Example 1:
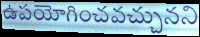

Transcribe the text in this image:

ఉపయోగించవచ్చునని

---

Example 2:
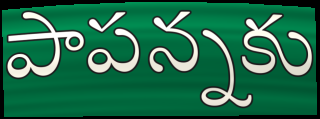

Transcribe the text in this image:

పాపన్నకు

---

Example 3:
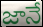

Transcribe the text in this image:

జానే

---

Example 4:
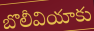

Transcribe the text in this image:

బొలీవియాకు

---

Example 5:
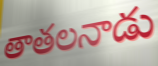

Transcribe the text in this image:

తాతలనాడు